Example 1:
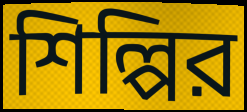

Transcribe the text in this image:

শিল্পির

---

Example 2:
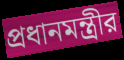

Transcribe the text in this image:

প্রধানমন্ত্রীর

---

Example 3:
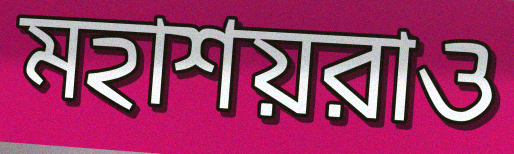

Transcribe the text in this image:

মহাশয়রাও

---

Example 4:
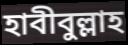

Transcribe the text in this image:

হাবীবুল্লাহ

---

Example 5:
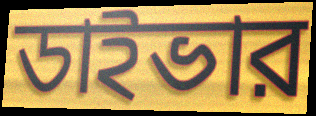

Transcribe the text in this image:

ডাইভার